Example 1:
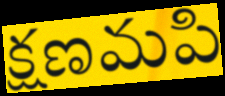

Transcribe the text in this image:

క్షణమపి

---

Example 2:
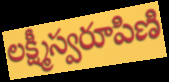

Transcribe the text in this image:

లక్ష్మీస్వరూపిణి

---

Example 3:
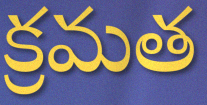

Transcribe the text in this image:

క్రమత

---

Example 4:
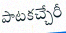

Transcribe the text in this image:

పాటకచ్చేరీ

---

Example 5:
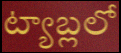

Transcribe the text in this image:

ట్యాబ్లలో